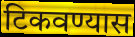
टिकवण्यास